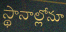
స్థానాల్లోనూ